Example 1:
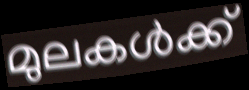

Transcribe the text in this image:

മുലകൾക്ക്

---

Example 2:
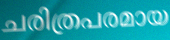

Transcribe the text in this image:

ചരിത്രപരമായ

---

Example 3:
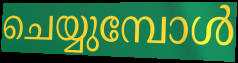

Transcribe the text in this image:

ചെയ്യുമ്പോൾ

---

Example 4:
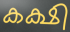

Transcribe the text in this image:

കക്ഷി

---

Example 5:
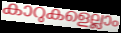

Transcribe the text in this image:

കാറുകളെല്ലാം